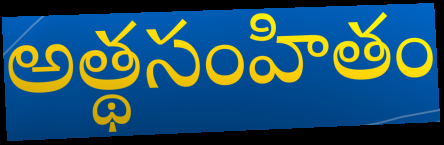
అత్థసంహితం